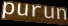
purun